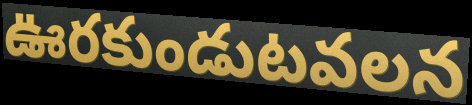
ఊరకుండుటవలన